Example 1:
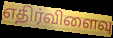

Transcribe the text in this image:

எதிர்விளைவு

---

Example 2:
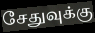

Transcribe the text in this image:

சேதுவுக்கு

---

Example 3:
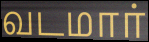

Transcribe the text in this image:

வடமார்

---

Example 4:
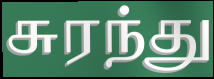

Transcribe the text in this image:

சுரந்து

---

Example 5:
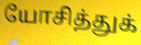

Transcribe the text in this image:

யோசித்துக்